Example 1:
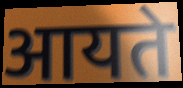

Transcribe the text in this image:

आयते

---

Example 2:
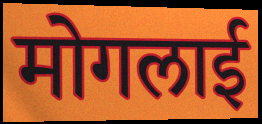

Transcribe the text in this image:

मोगलाई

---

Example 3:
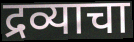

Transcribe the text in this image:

द्रव्याचा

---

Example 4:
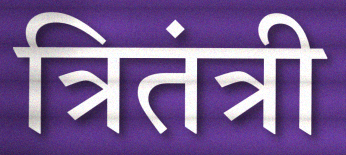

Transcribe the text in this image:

त्रितंत्री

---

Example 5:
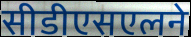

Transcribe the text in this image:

सीडीएसएलने